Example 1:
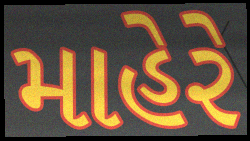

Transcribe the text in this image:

માહેરે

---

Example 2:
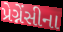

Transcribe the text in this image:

પ્રેગ્નેંસીના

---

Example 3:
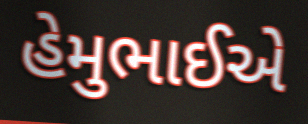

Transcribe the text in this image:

હેમુભાઈએ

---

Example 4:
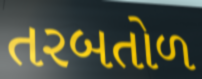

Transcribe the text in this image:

તરબતોળ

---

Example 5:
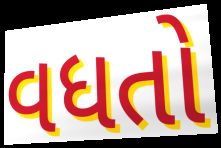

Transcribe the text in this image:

વધતો